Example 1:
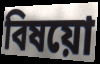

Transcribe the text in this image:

বিষয়ো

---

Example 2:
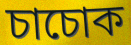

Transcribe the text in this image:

চাচোক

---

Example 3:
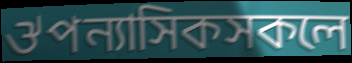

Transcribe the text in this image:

ঔপন্যাসিকসকলে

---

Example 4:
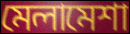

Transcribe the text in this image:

মেলামেশা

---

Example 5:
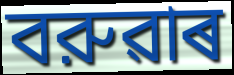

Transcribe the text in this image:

বৰুৱাৰ